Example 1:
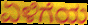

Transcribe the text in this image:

ಏಳಿಗೆಯ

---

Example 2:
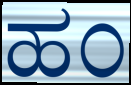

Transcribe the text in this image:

ಹಂ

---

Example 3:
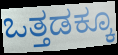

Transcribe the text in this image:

ಒತ್ತಡಕ್ಕೂ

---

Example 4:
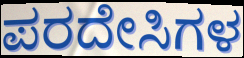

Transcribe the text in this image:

ಪರದೇಸಿಗಳ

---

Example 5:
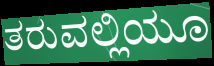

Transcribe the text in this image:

ತರುವಲ್ಲಿಯೂ